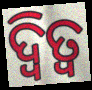
ଦ୍ୱିତ୍ୱ